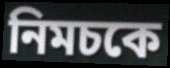
নিমচকে